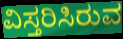
ವಿಸ್ತರಿಸಿರುವ